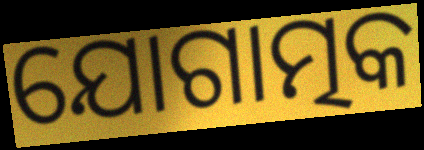
ଯୋଗାତ୍ମକ